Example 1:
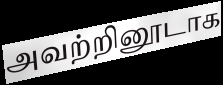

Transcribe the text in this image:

அவற்றினூடாக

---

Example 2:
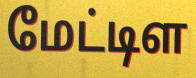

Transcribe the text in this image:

மேட்டிள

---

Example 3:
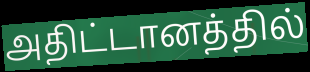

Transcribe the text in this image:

அதிட்டானத்தில்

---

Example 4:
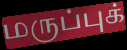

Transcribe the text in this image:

மருப்புக்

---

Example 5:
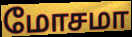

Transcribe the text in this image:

மோசமா